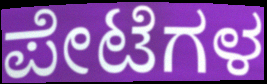
ಪೇಟೆಗಳ